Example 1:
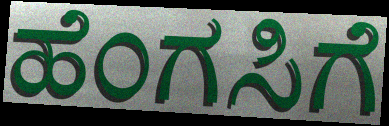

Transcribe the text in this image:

ಹೆಂಗಸಿಗೆ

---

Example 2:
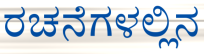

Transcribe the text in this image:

ರಚನೆಗಳಲ್ಲಿನ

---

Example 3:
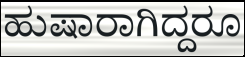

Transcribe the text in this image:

ಹುಷಾರಾಗಿದ್ದರೂ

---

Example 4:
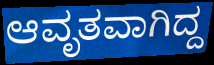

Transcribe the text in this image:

ಆವೃತವಾಗಿದ್ದ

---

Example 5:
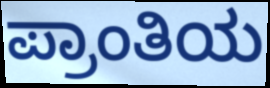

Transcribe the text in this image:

ಪ್ರಾಂತಿಯ